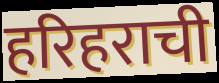
हरिहराची